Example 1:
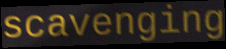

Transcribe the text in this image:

scavenging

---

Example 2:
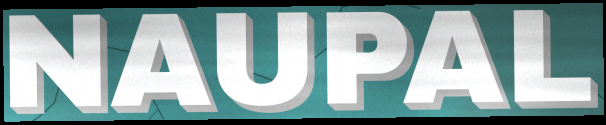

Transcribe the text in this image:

NAUPAL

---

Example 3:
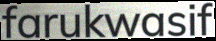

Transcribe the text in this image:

farukwasif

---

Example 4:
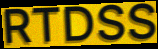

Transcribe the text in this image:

RTDSS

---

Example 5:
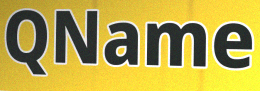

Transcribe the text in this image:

QName